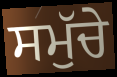
ਸਮੁੱਚੇ